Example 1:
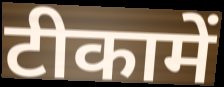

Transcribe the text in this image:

टीकामें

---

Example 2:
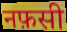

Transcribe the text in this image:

नफ़सी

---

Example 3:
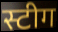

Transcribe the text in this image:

स्टीग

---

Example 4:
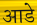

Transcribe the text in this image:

आडे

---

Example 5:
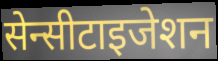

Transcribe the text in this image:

सेन्सीटाइजेशन